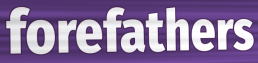
forefathers